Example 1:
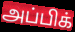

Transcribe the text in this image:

அப்பிக்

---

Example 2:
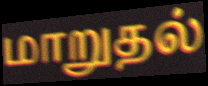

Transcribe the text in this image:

மாறுதல்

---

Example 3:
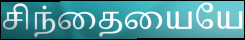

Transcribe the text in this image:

சிந்தையையே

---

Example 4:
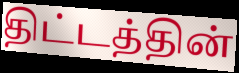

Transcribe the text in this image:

திட்டத்தின்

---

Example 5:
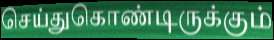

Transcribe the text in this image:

செய்துகொண்டிருக்கும்